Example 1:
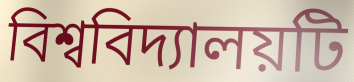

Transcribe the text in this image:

বিশ্ববিদ্যালয়টি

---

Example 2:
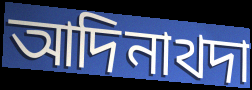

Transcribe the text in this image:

আদিনাথদা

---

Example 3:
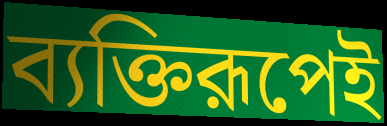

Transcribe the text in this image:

ব্যক্তিরূপেই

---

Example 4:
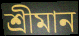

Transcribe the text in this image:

শ্রীমান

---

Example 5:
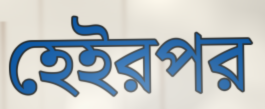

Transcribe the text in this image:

হেইরপর